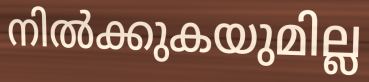
നിൽക്കുകയുമില്ല